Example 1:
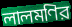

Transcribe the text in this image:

লালমণির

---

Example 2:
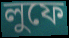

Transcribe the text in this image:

লুফে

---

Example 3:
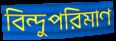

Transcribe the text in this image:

বিন্দুপরিমাণ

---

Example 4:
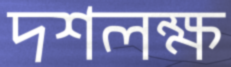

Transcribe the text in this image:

দশলক্ষ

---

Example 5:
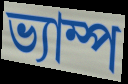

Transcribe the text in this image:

ভ্যাম্প